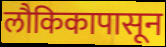
लौकिकापासून